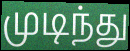
முடிந்து